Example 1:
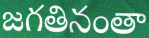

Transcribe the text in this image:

జగతినంతా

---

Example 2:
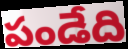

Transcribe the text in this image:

పండేది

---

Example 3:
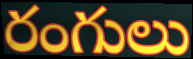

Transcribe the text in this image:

రంగులు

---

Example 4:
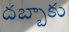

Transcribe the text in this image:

దబ్బాకు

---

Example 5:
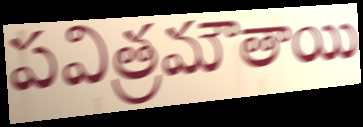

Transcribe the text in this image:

పవిత్రమౌతాయి